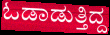
ಓಡಾಡುತ್ತಿದ್ದ